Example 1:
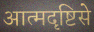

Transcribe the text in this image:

आत्मदृष्टिसे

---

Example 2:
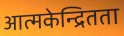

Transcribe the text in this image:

आत्मकेन्द्रितता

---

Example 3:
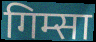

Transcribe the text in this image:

गिम्सा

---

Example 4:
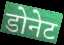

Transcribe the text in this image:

डोनेट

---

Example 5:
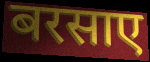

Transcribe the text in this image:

बरसाए